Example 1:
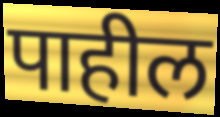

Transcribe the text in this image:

पाहील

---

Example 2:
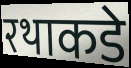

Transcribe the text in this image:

रथाकडे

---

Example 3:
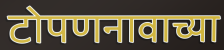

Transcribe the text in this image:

टोपणनावाच्या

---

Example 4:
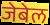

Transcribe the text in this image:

जेबेल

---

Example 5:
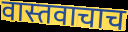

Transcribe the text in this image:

वास्तवाचाच